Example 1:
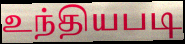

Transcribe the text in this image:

உந்தியபடி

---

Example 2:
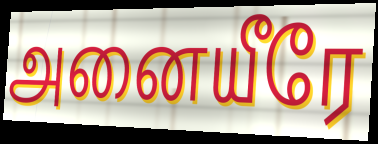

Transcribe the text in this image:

அனையீரே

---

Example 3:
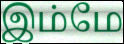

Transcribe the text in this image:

இம்மே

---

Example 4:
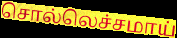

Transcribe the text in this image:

சொல்லெச்சமாய்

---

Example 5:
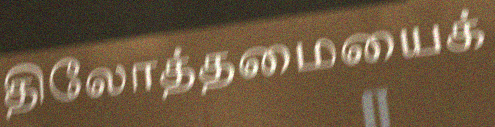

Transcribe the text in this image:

திலோத்தமையைக்